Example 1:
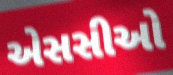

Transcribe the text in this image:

એસસીઓ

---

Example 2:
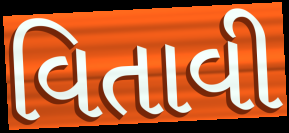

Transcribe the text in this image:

વિતાવી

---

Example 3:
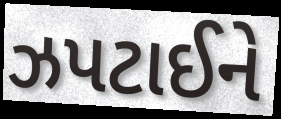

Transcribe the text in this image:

ઝપટાઈને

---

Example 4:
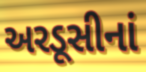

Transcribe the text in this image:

અરડૂસીનાં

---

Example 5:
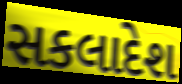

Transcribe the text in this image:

સકલાદેશ